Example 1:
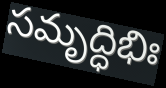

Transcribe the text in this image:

సమృద్ధిభిః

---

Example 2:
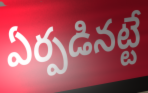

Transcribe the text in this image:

ఏర్పడినట్టే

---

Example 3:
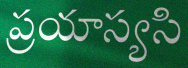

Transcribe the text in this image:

ప్రయాస్యసి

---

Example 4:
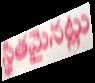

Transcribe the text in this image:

స్థితమైనట్లు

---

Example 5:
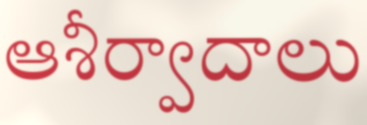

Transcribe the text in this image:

ఆశీర్వాదాలు